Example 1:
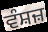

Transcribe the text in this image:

ਵੰਸ਼ਜ਼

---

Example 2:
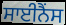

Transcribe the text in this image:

ਸਾਈਨੈਂਸ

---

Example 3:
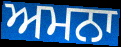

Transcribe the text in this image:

ਅਮਨਾ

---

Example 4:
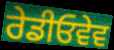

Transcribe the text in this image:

ਰੇਡੀਓਵੇਵ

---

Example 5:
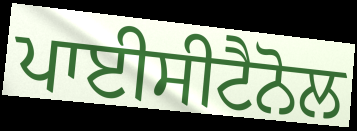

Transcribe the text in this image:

ਪਾਈਸੀਟੈਨੋਲ